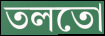
তলতো